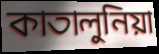
কাতালুনিয়া